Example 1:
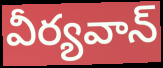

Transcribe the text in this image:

వీర్యవాన్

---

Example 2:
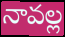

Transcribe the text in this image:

నావల్ల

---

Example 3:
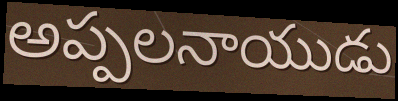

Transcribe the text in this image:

అప్పలనాయుడు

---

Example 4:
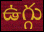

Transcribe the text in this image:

ఉగ్గు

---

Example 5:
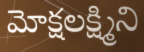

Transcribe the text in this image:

మోక్షలక్ష్మిని